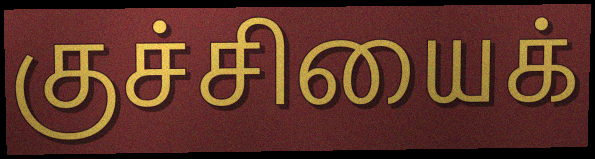
குச்சியைக்